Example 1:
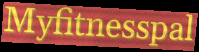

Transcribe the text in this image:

Myfitnesspal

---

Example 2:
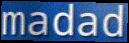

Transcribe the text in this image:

madad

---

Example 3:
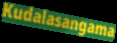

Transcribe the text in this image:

Kudalasangama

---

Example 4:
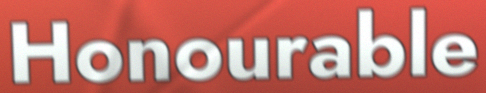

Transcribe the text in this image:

Honourable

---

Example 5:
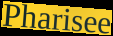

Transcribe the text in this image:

Pharisee